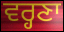
ਵਰ੍ਹਣਾ